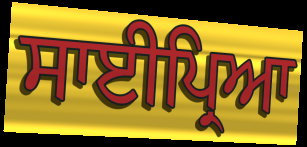
ਸਾਈਪ੍ਰਿਆ